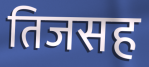
तिजसह